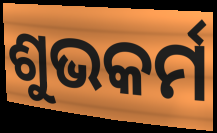
ଶୁଭକର୍ମ